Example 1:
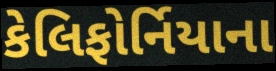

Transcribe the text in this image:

કેલિફોર્નિયાના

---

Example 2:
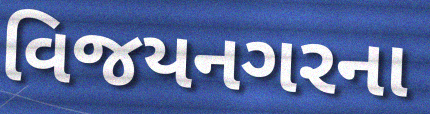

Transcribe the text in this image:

વિજયનગરના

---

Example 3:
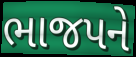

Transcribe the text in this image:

ભાજપને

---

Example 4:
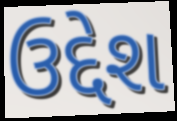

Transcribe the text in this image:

ઉદ્દેશ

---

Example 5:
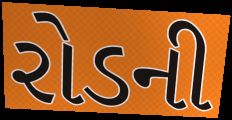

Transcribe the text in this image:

રોડની